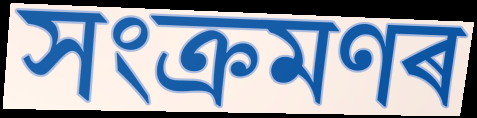
সংক্ৰমণৰ